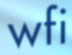
wfi